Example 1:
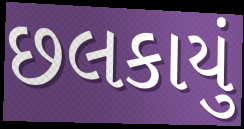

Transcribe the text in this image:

છલકાયું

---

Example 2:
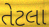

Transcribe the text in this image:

તેટલા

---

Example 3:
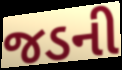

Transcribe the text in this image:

જડની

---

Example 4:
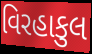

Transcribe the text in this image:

વિરહાકુલ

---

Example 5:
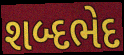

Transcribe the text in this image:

શબ્દભેદ